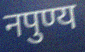
नपुण्य